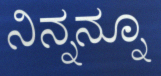
ನಿನ್ನನ್ನೂ